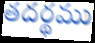
తదర్థము